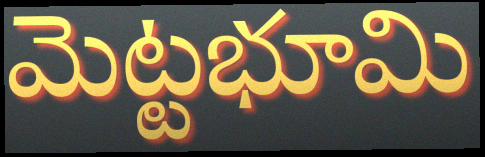
మెట్టభూమి